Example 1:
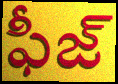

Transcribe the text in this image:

ఫీజ్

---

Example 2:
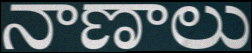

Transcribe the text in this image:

నాణాలు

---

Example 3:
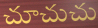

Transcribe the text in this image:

చూచుచు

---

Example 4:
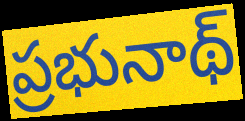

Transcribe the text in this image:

ప్రభునాథ్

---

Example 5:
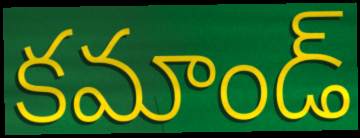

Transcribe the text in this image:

కమాండ్